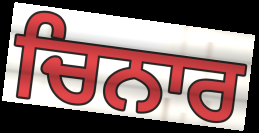
ਚਿਨਾਰ